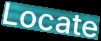
Locate